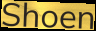
Shoen